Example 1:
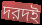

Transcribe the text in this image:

দরদই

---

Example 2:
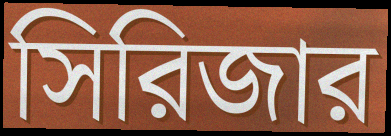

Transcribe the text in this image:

সিরিজার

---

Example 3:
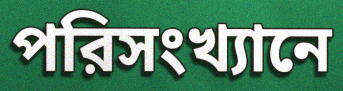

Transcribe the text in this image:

পরিসংখ্যানে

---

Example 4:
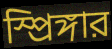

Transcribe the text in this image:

স্প্রিঙ্গার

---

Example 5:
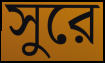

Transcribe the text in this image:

সুরে